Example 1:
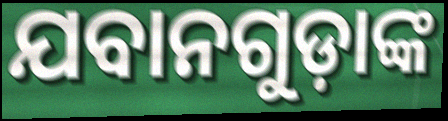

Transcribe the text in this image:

ଯବାନଗୁଡ଼ାଙ୍କ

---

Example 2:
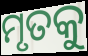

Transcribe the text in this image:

ମୃତକୁ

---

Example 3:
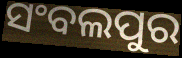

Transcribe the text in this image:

ସଂବଲପୁର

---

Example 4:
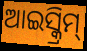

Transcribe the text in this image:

ଆଇସ୍କ୍ରିମ୍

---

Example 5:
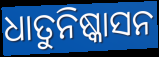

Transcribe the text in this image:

ଧାତୁନିଷ୍କାସନ